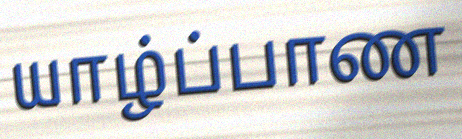
யாழ்ப்பாண